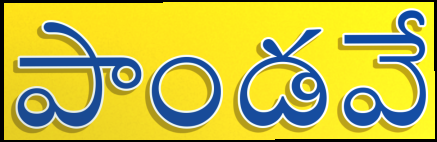
పాండవే